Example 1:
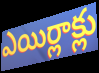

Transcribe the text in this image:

ఎయిర్లాక్లు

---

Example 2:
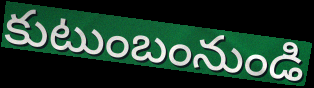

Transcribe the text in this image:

కుటుంబంనుండి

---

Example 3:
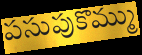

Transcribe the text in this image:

పసుపుకొమ్ము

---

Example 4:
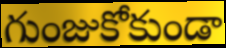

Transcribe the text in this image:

గుంజుకోకుండా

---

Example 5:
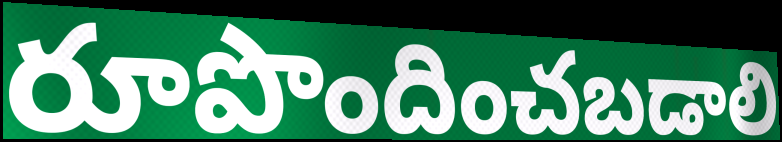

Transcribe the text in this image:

రూపొందించబడాలి